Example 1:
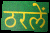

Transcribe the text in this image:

ठरलें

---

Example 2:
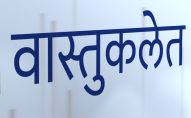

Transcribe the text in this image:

वास्तुकलेत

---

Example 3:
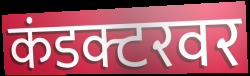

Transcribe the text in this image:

कंडक्टरवर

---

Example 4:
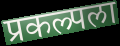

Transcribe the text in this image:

प्रकल्पला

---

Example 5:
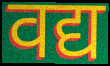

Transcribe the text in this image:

वद्य